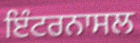
ਇੰਟਰਨਾਸਲ